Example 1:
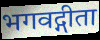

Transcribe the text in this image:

भगवद्गीता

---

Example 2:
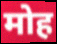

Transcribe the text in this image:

मोह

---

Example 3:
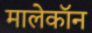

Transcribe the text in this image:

मालेकॉन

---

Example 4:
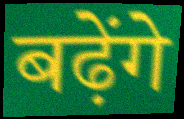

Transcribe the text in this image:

बढ़ेंगे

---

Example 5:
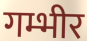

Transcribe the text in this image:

गम्भीर